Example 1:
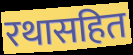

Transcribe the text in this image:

रथासहित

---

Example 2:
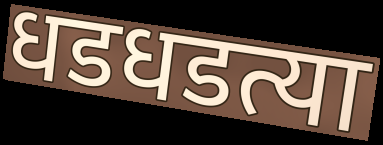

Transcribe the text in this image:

धडधडत्या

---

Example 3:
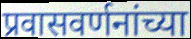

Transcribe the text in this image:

प्रवासवर्णनांच्या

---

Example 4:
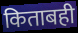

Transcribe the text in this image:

किताबही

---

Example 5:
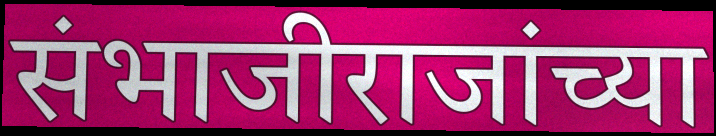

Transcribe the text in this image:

संभाजीराजांच्या